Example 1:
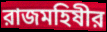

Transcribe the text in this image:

রাজমহিষীর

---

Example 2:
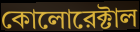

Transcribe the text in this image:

কোলোরেক্টাল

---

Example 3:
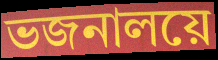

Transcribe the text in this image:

ভজনালয়ে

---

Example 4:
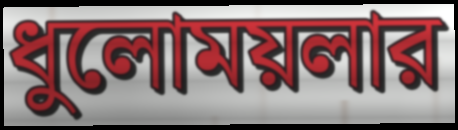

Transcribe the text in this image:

ধুলোময়লার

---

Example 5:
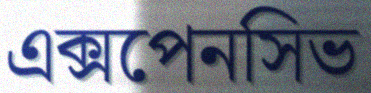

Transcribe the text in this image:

এক্সপেনসিভ